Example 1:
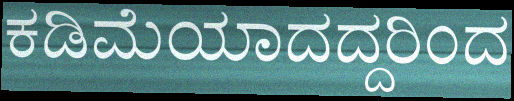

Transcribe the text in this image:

ಕಡಿಮೆಯಾದದ್ದರಿಂದ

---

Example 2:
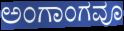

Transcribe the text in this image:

ಅಂಗಾಂಗವೂ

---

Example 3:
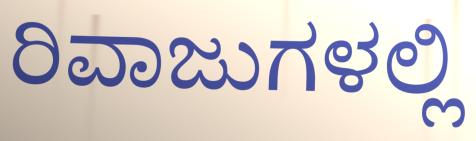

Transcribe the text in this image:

ರಿವಾಜುಗಳಲ್ಲಿ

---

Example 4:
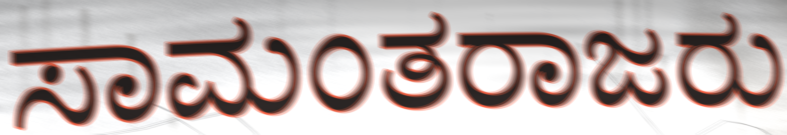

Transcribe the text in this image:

ಸಾಮಂತರಾಜರು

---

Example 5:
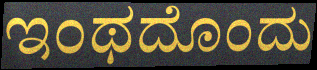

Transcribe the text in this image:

ಇಂಥದೊಂದು